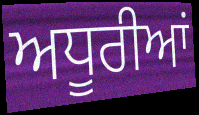
ਅਧੂਰੀਆਂ